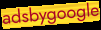
adsbygoogle